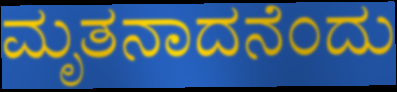
ಮೃತನಾದನೆಂದು